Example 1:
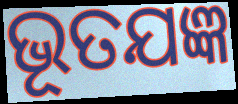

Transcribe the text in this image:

ଭୂତଯଜ୍ଞ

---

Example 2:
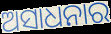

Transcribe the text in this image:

ଅସାଧନାର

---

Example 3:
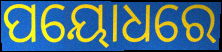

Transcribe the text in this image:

ପୟୋଧରେ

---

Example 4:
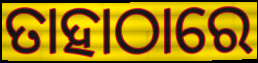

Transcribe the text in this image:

ତାହାଠାରେ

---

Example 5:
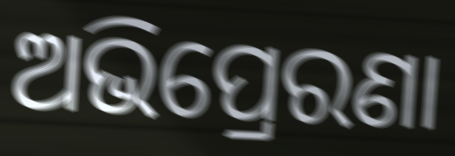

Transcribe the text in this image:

ଅଭିପ୍ରେରଣା